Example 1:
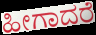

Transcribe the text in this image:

ಹೀಗಾದರೆ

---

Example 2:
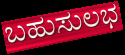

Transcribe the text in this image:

ಬಹುಸುಲಭ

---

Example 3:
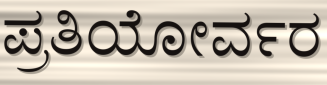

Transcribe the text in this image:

ಪ್ರತಿಯೋರ್ವರ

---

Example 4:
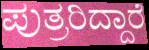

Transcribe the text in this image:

ಪುತ್ರರಿದ್ದಾರೆ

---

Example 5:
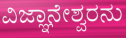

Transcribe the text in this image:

ವಿಜ್ಞಾನೇಶ್ವರನು